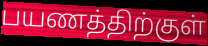
பயணத்திற்குள்